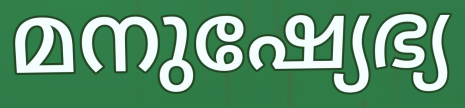
മനുഷ്യേഭ്യ